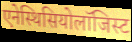
एनेस्थिसियोलॉजिस्ट